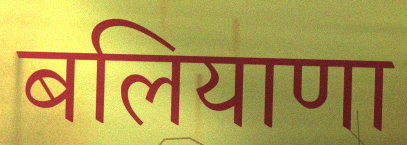
बलियाणा